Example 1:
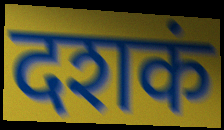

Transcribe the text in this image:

दशकं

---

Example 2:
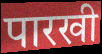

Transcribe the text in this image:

पारखी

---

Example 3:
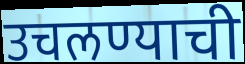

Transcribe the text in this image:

उचलण्याची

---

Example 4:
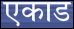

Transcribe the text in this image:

एकाड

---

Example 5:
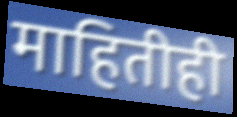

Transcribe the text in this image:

माहितीही